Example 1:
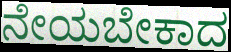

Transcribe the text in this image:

ನೇಯಬೇಕಾದ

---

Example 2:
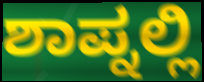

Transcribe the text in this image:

ಶಾಪ್ನಲ್ಲಿ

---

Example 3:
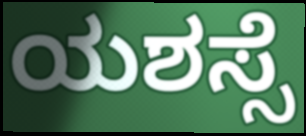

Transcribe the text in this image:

ಯಶಸ್ಸೆ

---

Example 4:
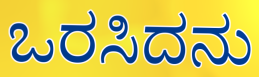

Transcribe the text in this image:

ಒರಸಿದನು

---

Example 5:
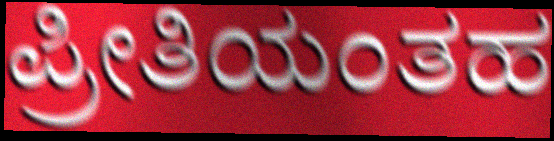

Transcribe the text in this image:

ಪ್ರೀತಿಯಂತಹ